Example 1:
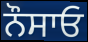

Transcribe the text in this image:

ਨੌਸਾਓ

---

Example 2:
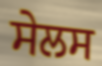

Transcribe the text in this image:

ਸੇਲਸ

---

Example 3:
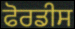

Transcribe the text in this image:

ਫੋਰਡੀਸ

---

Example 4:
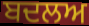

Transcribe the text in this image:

ਬਦਲਅ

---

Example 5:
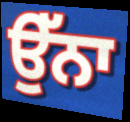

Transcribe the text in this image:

ਉੱਨਾ